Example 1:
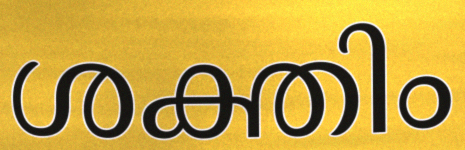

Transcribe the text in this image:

ശക്തിം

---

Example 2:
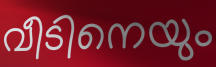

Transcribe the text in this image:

വീടിനെയും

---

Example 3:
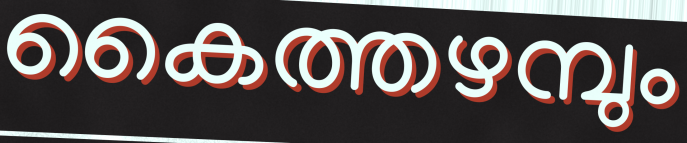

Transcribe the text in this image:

കൈത്തഴമ്പും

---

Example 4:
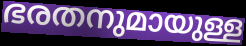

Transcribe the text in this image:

ഭരതനുമായുള്ള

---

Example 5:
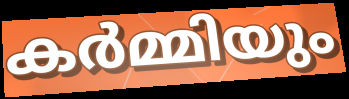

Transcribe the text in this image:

കർമ്മിയും